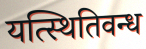
यत्स्थितिवन्ध